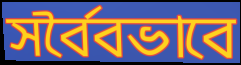
সর্বৈবভাবে